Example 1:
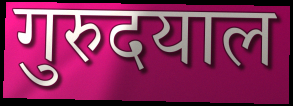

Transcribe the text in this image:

गुरुदयाल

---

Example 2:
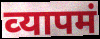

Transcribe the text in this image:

व्‍यापमं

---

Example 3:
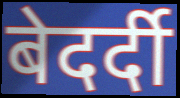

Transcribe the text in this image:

बेदर्दी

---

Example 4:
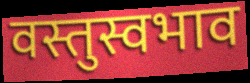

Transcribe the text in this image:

वस्तुस्वभाव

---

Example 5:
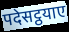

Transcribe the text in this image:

पदेसट्ठयाए